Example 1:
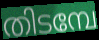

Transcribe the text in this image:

തിടമ്പേ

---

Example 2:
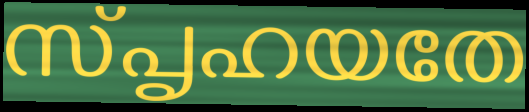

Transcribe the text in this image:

സ്പൃഹയതേ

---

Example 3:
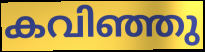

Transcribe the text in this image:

കവിഞ്ഞു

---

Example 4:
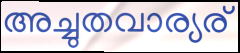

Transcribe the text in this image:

അച്ചുതവാര്യര്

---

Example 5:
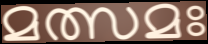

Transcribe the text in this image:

മത്സമഃ